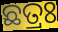
ଛତ୍ରଃ